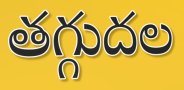
తగ్గుదల